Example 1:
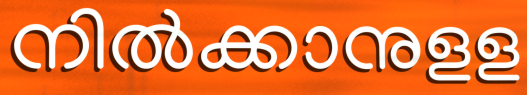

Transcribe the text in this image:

നിൽക്കാനുളള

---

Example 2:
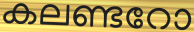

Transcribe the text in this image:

കലണ്ടറോ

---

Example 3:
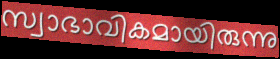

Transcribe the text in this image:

സ്വാഭാവികമായിരുന്നു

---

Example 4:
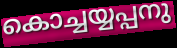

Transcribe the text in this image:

കൊച്ചയ്യപ്പനു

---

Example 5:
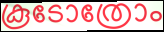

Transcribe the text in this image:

കൂടോത്രോം